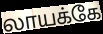
லாயக்கே